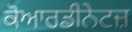
ਕੋਆਰਡੀਨੇਟਜ਼